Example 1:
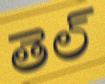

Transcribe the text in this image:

తెల్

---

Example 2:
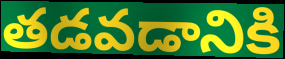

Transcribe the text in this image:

తడవడానికి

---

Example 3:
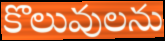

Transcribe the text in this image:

కొలువులను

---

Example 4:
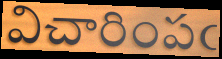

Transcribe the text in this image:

విచారింపఁ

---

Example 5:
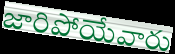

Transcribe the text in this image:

జారిపోయేవారు